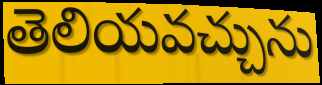
తెలియవచ్చును